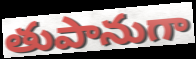
తుపానుగా